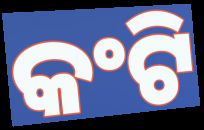
କଂଟି